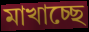
মাখাচ্ছে